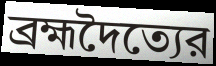
ব্রহ্মদৈত্যের